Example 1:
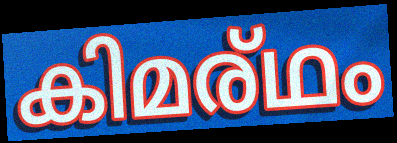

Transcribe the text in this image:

കിമര്ഥം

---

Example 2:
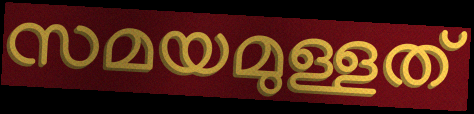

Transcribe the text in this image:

സമയമുള്ളത്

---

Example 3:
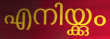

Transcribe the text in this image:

എനിയ്ക്കും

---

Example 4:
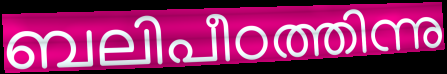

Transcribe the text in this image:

ബലിപീഠത്തിന്നു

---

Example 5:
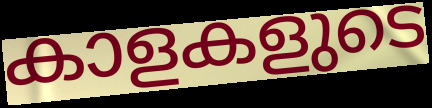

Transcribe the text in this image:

കാളകളുടെ